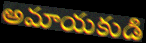
అమాయకుడి